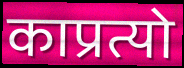
काप्रत्यो